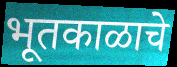
भूतकाळाचे